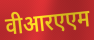
वीआरएएम